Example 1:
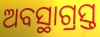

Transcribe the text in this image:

ଅବସ୍ଥାଗ୍ରସ୍ତ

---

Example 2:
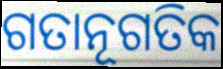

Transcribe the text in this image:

ଗତାନୂଗତିକ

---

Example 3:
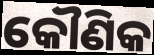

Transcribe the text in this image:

କୌଣିକ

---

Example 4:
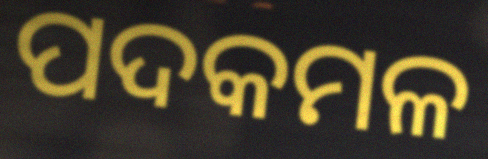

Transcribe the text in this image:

ପଦକମଳ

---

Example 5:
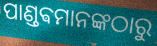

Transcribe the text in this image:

ପାଣ୍ଡଵମାନଙ୍କଠାରୁ